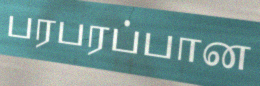
பரபரப்பான